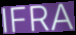
IFRA